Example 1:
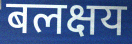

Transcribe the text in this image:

बलक्षय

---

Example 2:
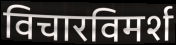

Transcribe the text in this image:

विचारविमर्श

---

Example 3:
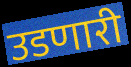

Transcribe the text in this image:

उडणारी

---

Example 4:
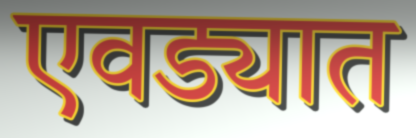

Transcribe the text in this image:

एवड्यात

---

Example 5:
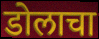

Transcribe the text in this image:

डोलाचा